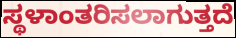
ಸ್ಥಳಾಂತರಿಸಲಾಗುತ್ತದೆ